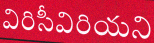
విరిసీవిరియని